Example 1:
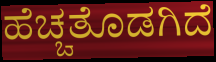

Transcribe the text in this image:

ಹೆಚ್ಚತೊಡಗಿದೆ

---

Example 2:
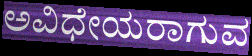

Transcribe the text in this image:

ಅವಿಧೇಯರಾಗುವ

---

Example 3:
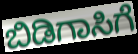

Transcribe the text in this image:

ಬಿಡಿಗಾಸಿಗೆ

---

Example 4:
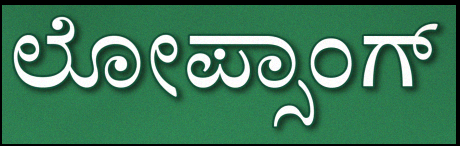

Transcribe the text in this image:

ಲೋಪ್ಸಾಂಗ್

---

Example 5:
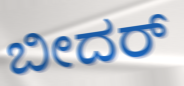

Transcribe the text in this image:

ಬೀದರ್